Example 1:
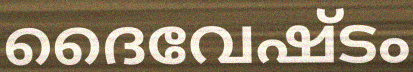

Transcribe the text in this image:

ദൈവേഷ്ടം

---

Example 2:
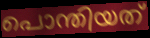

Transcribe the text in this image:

പൊന്തിയത്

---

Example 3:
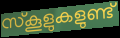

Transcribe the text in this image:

സ്കൂളുകളുണ്ട്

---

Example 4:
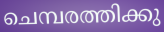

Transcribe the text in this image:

ചെമ്പരത്തിക്കു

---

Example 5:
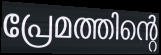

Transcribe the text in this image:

പ്രേമത്തിന്റെ